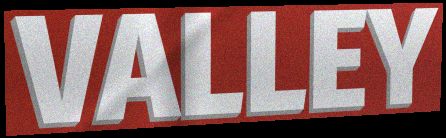
VALLEY